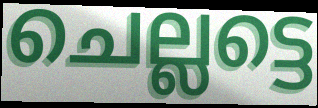
ചെല്ലട്ടെ